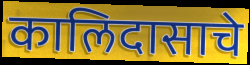
कालिदासाचे